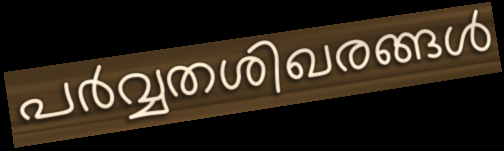
പർവ്വതശിഖരങ്ങൾ